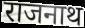
राजनाथ